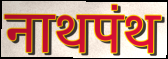
नाथपंथ